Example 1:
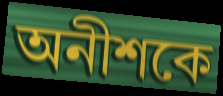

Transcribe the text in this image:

অনীশকে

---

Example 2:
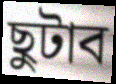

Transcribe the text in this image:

ছুটাব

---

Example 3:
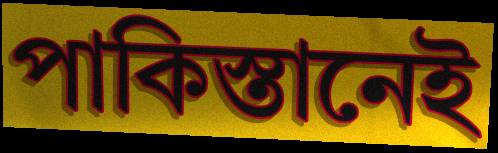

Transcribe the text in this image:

পাকিস্তানেই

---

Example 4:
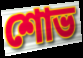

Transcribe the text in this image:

শোভ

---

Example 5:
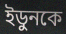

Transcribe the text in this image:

ইডুনকে